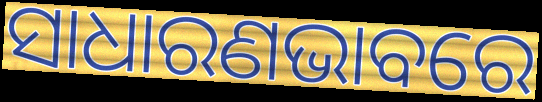
ସାଧାରଣଭାବରେ